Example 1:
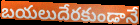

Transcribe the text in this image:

బయలుదేరకుండానే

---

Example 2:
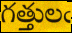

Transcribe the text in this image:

గత్తులఁ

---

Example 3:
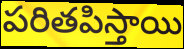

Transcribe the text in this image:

పరితపిస్తాయి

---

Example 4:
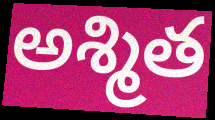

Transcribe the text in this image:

అశ్మిత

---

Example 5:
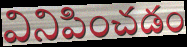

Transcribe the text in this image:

వినిపించడం